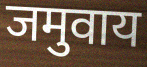
जमुवाय